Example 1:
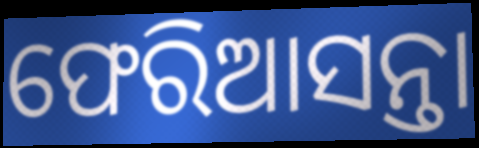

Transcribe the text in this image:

ଫେରିଆସନ୍ତା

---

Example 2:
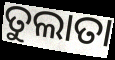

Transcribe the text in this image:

ତୁଲାତା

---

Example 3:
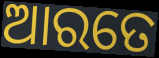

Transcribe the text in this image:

ଆରତେ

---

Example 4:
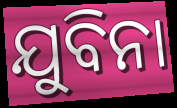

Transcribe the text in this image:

ଯୁବିନା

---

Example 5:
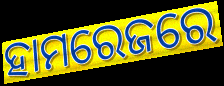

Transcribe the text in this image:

ହାମରେଜରେ